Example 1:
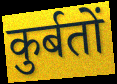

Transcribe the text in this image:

कुर्बतों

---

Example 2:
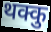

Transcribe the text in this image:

थक्कु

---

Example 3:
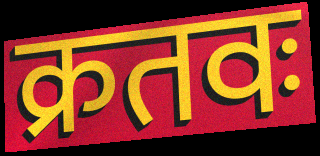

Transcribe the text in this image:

क्रतवः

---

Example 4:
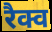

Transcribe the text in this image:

रैक्व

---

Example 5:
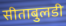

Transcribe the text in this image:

सीताबुलडी